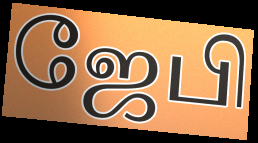
ஜேபி